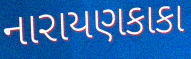
નારાયણકાકા